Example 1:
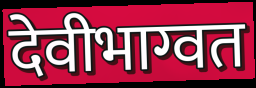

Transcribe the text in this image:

देवीभाग्वत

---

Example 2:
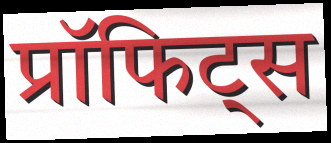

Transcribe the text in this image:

प्रॉफिट्स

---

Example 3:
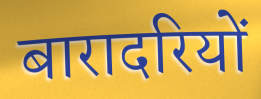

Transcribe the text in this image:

बारादरियों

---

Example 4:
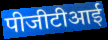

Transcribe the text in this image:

पीजीटीआई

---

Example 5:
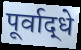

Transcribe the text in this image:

पूर्वाद्धे